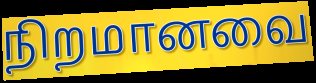
நிறமானவை